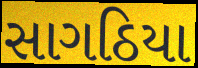
સાગઠિયા